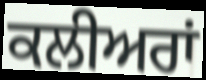
ਕਲੀਅਰਾਂ